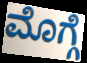
ಮೊಗ್ಗೆ